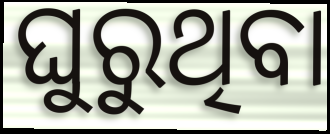
ଘୁରୁଥିବା